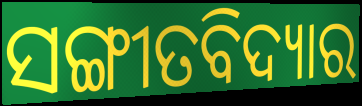
ସଙ୍ଗୀତବିଦ୍ୟାର